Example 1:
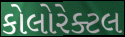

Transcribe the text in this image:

કોલોરેક્ટલ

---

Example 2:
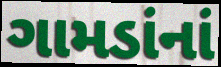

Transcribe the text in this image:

ગામડાંનાં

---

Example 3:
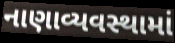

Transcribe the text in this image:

નાણાવ્યવસ્થામાં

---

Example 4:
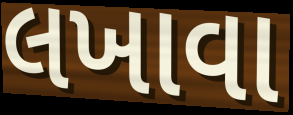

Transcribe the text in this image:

લખાવા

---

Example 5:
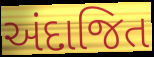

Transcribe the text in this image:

અંદાજિત